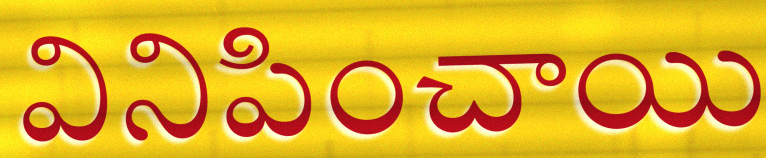
వినిపించాయి